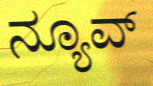
ನ್ಯೂವ್